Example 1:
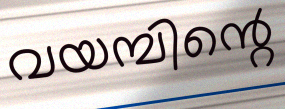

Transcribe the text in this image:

വയമ്പിന്റെ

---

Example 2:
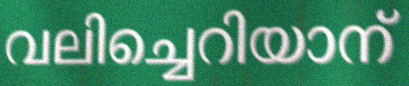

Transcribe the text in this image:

വലിച്ചെറിയാന്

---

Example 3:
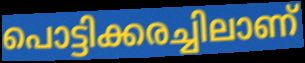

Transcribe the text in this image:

പൊട്ടിക്കരച്ചിലാണ്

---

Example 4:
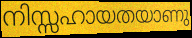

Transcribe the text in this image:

നിസ്സഹായതയാണു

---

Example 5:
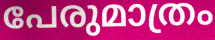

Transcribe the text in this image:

പേരുമാത്രം